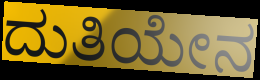
ದುತಿಯೇನ